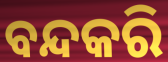
ବନ୍ଦକରି